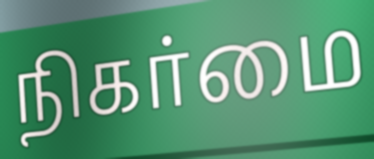
நிகர்மை